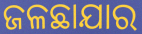
ଜଳଛାଯାର